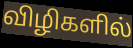
விழிகளில்